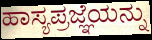
ಹಾಸ್ಯಪ್ರಜ್ಞೆಯನ್ನು